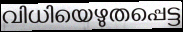
വിധിയെഴുതപ്പെട്ട